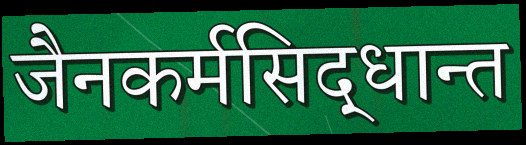
जैनकर्मसिद्धान्त